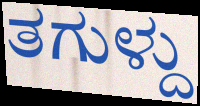
ತಗುಳ್ದು